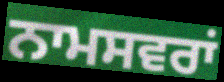
ਨਾਮਸਵਰਾਂ